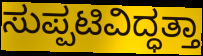
ಸುಪ್ಪಟಿವಿದ್ಧತ್ತಾ